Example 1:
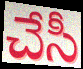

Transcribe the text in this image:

చేసీ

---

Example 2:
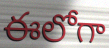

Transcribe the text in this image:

ఈలోగా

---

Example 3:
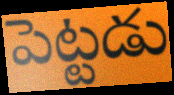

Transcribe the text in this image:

పెట్టడు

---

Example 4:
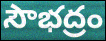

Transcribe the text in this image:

సౌభద్రం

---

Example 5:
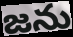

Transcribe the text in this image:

జను